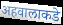
अहवालाकडे